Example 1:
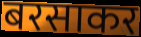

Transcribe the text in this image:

बरसाकर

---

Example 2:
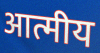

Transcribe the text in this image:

आत्मीय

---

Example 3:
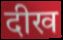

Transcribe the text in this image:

दीख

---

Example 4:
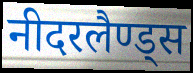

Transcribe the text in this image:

नीदरलैण्ड्स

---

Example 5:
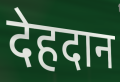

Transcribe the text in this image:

देहदान